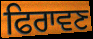
ਫਿਰਾਵਣ